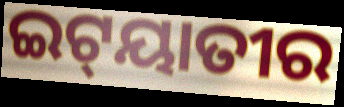
ଇଟ୍‍ୟାତୀର